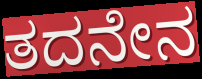
ತದನೇನ